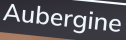
Aubergine